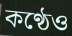
কণ্ঠেও